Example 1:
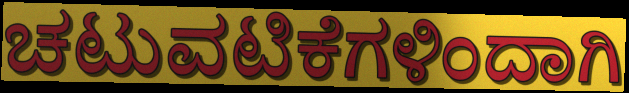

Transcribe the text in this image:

ಚಟುವಟಿಕೆಗಳಿಂದಾಗಿ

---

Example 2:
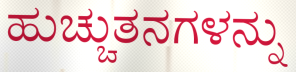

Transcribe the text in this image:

ಹುಚ್ಚುತನಗಳನ್ನು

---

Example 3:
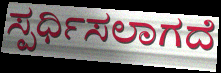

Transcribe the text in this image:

ಸ್ಪರ್ಧಿಸಲಾಗದೆ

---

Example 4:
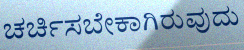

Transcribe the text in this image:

ಚರ್ಚಿಸಬೇಕಾಗಿರುವುದು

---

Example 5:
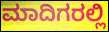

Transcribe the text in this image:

ಮಾದಿಗರಲ್ಲಿ